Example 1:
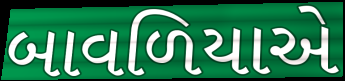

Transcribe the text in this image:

બાવળિયાએ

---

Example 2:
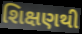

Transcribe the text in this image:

શિક્ષણથી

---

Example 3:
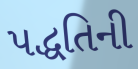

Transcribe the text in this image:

પદ્ધતિની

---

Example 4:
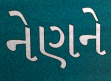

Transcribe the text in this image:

નેણને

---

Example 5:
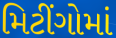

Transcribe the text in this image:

મિટીંગોમાં